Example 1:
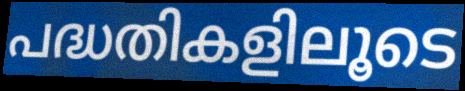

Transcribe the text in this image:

പദ്ധതികളിലൂടെ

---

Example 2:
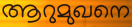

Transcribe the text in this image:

ആറുമുഖനെ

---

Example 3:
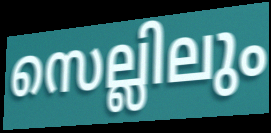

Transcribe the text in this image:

സെല്ലിലും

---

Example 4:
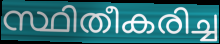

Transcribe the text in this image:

സ്ഥിതീകരിച്ച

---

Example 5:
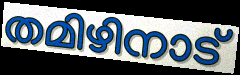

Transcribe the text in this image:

തമിഴിനാട്